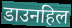
डाउनहिल